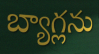
బ్యాగ్లను